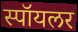
स्पॉयलर